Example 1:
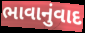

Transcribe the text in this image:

ભાવાનુંવાદ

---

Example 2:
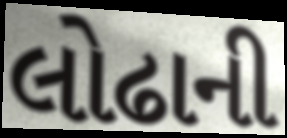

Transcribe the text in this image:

લોઢાની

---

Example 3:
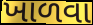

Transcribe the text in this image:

ખાળવા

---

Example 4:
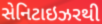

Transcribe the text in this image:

સેનિટાઇઝરથી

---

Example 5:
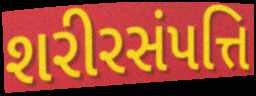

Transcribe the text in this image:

શરીરસંપત્તિ